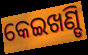
କେଇଖଣ୍ଡି